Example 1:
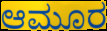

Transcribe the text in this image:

ಆಮೂರ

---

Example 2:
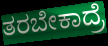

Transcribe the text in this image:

ತರಬೇಕಾದ್ರೆ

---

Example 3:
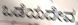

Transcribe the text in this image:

ಒಡೆಯದೇವ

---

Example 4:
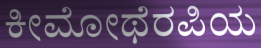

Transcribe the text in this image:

ಕೀಮೋಥೆರಪಿಯ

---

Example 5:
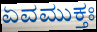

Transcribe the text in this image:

ಏವಮುಕ್ತಃ